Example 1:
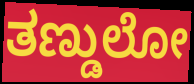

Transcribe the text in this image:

ತಣ್ಡುಲೋ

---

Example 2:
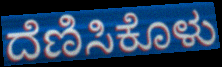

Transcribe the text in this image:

ದೆಣಿಸಿಕೊಳು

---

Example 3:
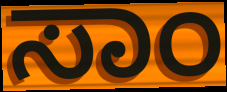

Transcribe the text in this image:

ಸಾಂ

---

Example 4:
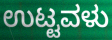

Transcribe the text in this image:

ಉಟ್ಟವಳು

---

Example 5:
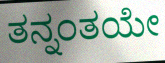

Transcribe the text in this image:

ತನ್ನಂತಯೇ